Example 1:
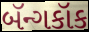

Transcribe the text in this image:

બૅન્ગકૉક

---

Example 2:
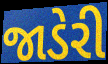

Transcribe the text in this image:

જાડેરી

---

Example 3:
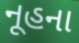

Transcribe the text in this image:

નૂહના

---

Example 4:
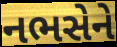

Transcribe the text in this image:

નભસેને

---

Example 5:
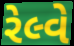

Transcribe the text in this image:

રેલ્વે